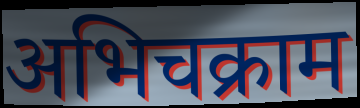
अभिचक्राम